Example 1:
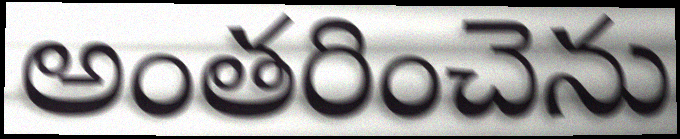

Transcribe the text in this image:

అంతరించెను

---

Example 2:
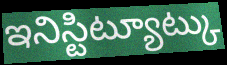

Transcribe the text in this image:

ఇనిస్టిట్యూట్కు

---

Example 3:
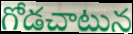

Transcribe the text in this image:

గోడచాటున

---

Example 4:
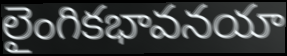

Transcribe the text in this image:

లైంగికభావనయా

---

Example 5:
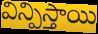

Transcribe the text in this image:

విన్పిస్తాయి